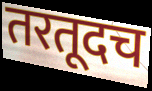
तरतूदच